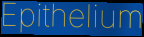
Epithelium